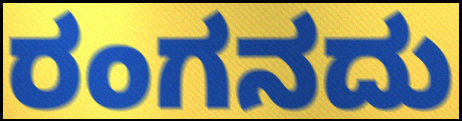
ರಂಗನದು